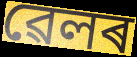
ৱেলৰ